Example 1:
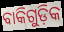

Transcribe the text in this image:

ବାକିଗୁଡ଼ିକ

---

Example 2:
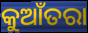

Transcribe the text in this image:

କୁଆଁତରା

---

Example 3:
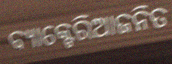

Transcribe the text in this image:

ବ୍ୟାକ୍ଟେରିଆଜନିତ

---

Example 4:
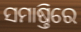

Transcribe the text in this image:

ସମାଷ୍ତିରେ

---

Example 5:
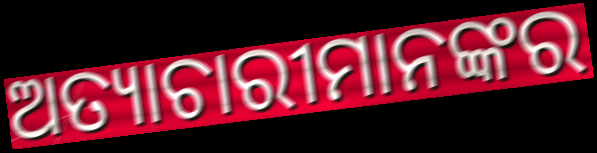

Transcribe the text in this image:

ଅତ୍ୟାଚାରୀମାନଙ୍କର